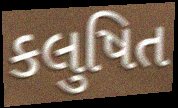
કલુષિત